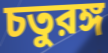
চতুরঙ্গ